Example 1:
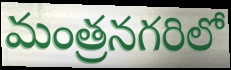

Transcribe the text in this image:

మంత్రనగరిలో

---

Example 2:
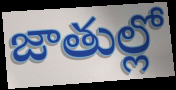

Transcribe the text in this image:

జాతుల్లో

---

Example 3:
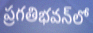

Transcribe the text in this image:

ప్రగతిభవన్‌లో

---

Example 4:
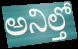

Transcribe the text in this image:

అనిల్తో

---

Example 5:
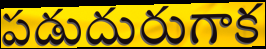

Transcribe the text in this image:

పడుదురుగాక